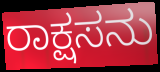
ರಾಕ್ಷಸನು